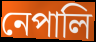
নেপালি